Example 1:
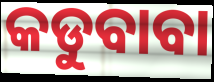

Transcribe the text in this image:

କଡୁବାବା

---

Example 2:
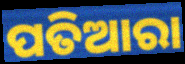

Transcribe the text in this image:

ପତିଆରା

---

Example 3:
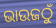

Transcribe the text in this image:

ଭାଉଜଠୁଁ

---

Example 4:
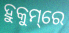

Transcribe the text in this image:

ହୁକୁମ୍‌ରେ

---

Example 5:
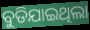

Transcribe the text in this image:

ବୁଡିଯାଇଥିଲା